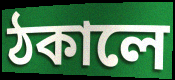
ঠকালে